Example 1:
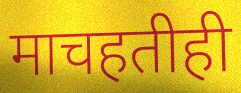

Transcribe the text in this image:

माचहतीही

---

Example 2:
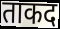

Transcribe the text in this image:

ताकद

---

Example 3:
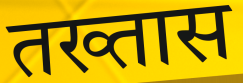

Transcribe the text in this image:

तख्तास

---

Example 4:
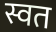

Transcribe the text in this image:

स्वत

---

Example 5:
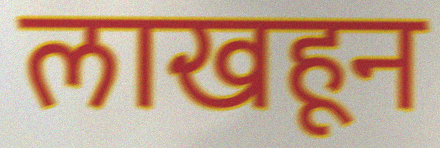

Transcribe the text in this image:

लाखहून